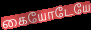
கையோடேயே